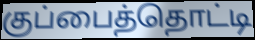
குப்பைத்தொட்டி